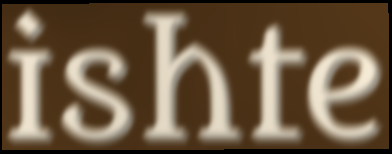
ishte